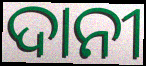
ଦାନୀ